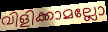
വിളിക്കാമല്ലോ